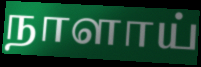
நாளாய்